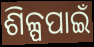
ଶିଳ୍ପପାଇଁ